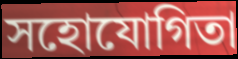
সহোযোগিতা